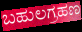
ಬಹುಲಗ್ರಹಣ